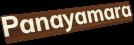
Panayamara